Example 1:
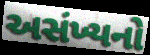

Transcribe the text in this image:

અસંખ્યનો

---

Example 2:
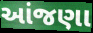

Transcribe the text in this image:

આંજણા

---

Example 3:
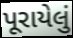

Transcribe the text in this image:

પૂરાયેલું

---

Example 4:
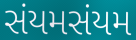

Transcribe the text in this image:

સંયમસંયમ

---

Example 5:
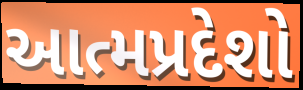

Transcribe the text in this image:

આત્મપ્રદેશો